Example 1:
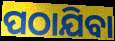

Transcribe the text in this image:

ପଠାଯିବା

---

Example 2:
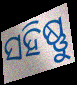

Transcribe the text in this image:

ସହିଷ୍ଣୁ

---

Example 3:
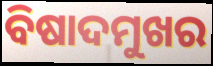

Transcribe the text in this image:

ବିଷାଦମୁଖର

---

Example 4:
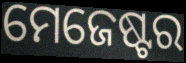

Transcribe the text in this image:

ମେଜେଷ୍ଟର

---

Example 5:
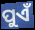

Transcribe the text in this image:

ପୁଏଁ